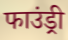
फाउंड्री